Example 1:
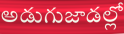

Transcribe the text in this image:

అడుగుజాడల్లో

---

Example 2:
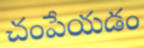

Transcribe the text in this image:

చంపేయడం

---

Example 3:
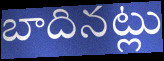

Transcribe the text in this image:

బాదినట్లు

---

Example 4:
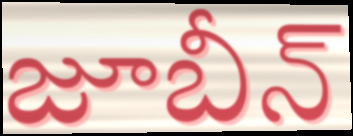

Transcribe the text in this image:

జూబీన్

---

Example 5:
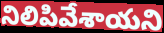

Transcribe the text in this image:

నిలిపివేశాయని